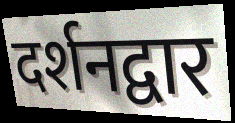
दर्शनद्वार